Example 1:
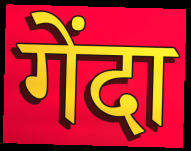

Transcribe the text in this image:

गेंदा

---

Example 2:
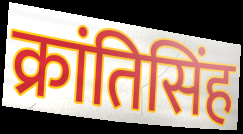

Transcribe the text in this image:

क्रांतिसिंह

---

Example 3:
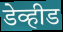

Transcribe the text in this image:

डेव्हीड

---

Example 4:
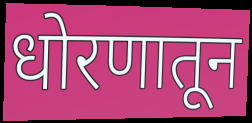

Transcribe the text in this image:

धोरणातून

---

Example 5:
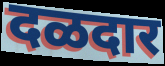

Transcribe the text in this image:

दळदार